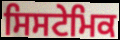
ਸਿਸਟੇਮਿਕ